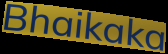
Bhaikaka